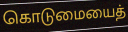
கொடுமையைத்